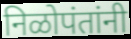
निळोपंतांनी